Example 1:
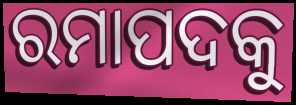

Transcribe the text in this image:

ରମାପଦକୁ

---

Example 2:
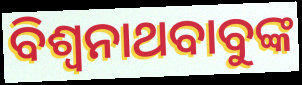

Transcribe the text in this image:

ବିଶ୍ୱନାଥବାବୁଙ୍କ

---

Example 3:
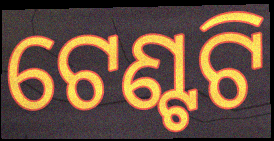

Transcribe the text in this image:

ଟେଣ୍ଟଟି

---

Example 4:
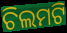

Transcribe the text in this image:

ଚିଲମଟି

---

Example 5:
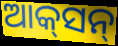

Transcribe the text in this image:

ଆକ୍‍ସନ୍